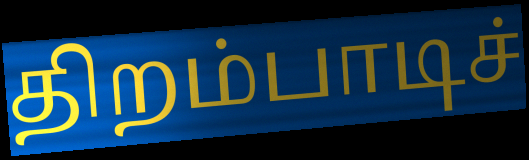
திறம்பாடிச்